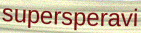
supersperavi